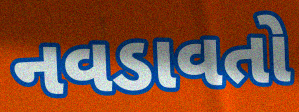
નવડાવતો